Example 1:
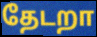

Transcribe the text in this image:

தேடறா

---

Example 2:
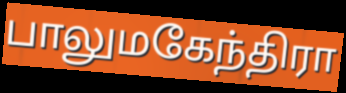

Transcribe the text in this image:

பாலுமகேந்திரா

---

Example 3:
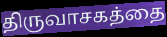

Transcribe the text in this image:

திருவாசகத்தை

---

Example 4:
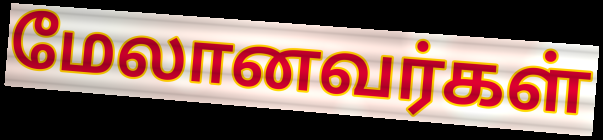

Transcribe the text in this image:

மேலானவர்கள்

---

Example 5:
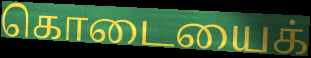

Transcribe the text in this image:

கொடையைக்